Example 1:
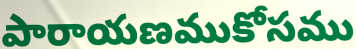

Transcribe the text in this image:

పారాయణముకోసము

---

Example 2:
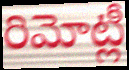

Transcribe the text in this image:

రిమోట్లీ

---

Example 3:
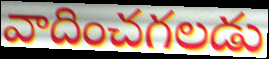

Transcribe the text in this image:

వాదించగలడు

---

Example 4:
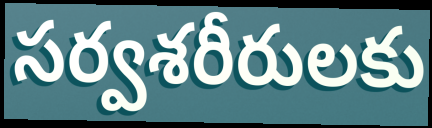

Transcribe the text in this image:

సర్వశరీరులకు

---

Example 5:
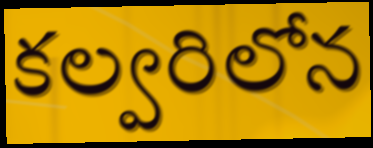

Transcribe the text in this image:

కల్వరిలోన